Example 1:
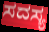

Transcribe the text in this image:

ಸದಸ್ಯ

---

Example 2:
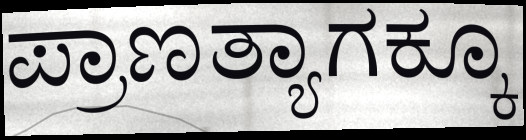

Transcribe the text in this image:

ಪ್ರಾಣತ್ಯಾಗಕ್ಕೂ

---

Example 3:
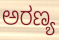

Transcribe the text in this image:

ಅರಣ್ಯ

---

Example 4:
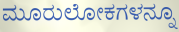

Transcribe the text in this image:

ಮೂರುಲೋಕಗಳನ್ನೂ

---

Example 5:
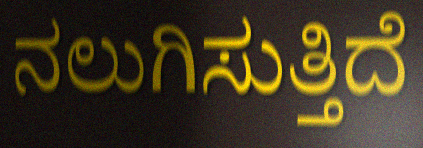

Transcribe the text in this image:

ನಲುಗಿಸುತ್ತಿದೆ